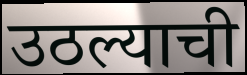
उठल्याची